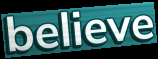
believe